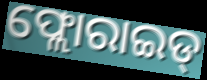
ଫ୍ଲୋରାଇଡ୍